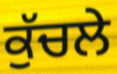
ਕੁੱਚਲੇ